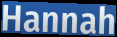
Hannah